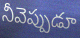
నీవెప్పుడూ